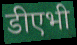
डीएभी